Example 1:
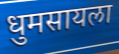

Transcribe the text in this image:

धुमसायला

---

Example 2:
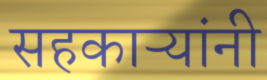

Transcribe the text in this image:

सहकाऱ्यांनी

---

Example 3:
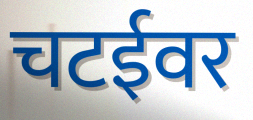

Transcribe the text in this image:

चटईवर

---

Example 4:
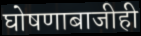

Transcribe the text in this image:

घोषणाबाजीही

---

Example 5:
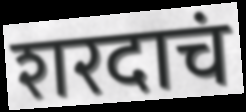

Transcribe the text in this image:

शरदाचं